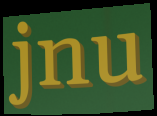
jnu